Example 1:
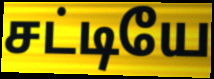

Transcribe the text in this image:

சட்டியே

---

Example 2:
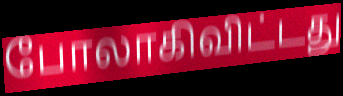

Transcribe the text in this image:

போலாகிவிட்டது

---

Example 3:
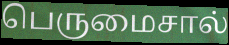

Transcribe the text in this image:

பெருமைசால்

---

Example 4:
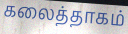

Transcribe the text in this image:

கலைத்தாகம்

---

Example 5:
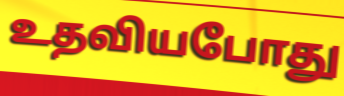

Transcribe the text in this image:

உதவியபோது